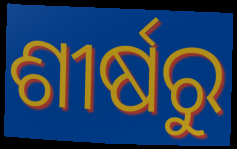
ଶୀର୍ଷରୁ